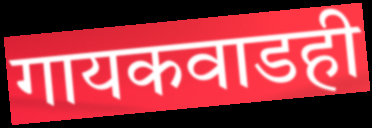
गायकवाडही